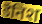
डॅनिश